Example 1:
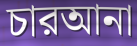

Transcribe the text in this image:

চারআনা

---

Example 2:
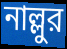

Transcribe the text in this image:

নাল্লুর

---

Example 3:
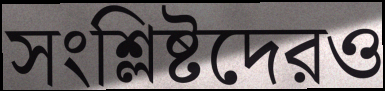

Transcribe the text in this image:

সংশ্লিষ্টদেরও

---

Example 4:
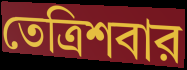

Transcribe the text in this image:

তেত্রিশবার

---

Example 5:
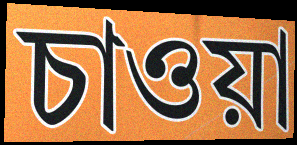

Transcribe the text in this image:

চাওয়া